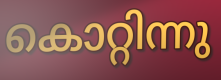
കൊറ്റിന്നു